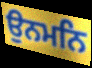
ਉਨਮਨਿ